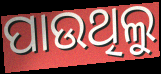
ପାଉଥିଲୁ